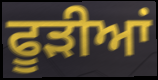
ਫੂੜੀਆਂ